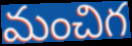
మంచిగ